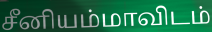
சீனியம்மாவிடம்